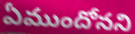
ఏముందోనని